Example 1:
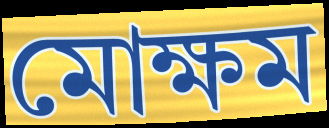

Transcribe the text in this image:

মোক্ষম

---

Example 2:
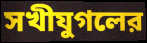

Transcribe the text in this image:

সখীযুগলের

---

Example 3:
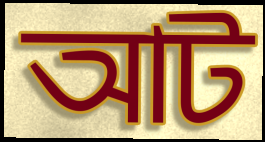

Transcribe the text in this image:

আট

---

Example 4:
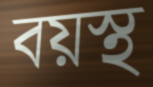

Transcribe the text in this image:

বয়স্থ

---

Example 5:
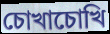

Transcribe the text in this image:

চোখাচোখি